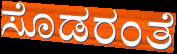
ಸೊಡರಂತೆ